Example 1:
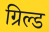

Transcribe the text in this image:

ग्रिल्ड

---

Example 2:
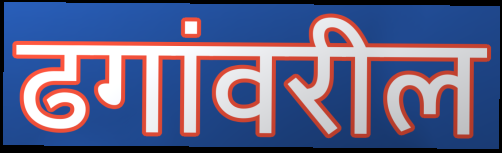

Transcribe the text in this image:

ढगांवरील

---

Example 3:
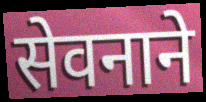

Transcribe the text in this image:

सेवनाने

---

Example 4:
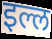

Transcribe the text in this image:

इल्ल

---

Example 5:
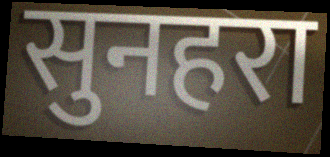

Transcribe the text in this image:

सुनहरा